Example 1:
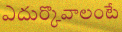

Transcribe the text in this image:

ఎదుర్కొవాలంటే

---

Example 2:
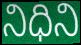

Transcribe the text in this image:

నిధిని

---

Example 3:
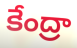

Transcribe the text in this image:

కేంద్రా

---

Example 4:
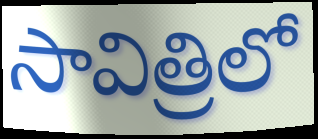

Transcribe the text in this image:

సావిత్రిలో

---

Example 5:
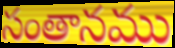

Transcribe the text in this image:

సంతానము